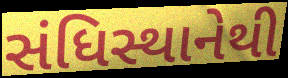
સંધિસ્થાનેથી